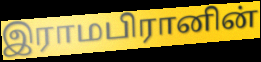
இராமபிரானின்